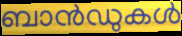
ബാൻഡുകൾ